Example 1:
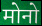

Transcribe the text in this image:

मोनो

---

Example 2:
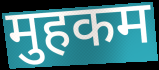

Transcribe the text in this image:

मुहकम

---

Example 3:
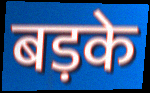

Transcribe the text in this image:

बड़के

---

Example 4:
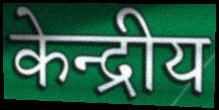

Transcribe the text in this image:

केन्द्रीय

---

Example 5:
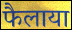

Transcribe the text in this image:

फैलाया